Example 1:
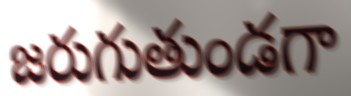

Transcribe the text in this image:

జరుగుతుండగా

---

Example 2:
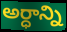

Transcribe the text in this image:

అర్ధాన్ని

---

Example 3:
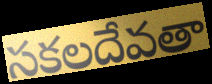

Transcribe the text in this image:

సకలదేవతా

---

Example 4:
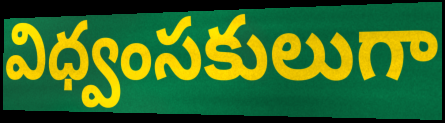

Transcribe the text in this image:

విధ్వంసకులుగా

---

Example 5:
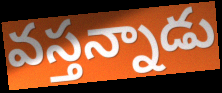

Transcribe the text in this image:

వస్తన్నాడు